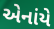
એનાંયે